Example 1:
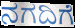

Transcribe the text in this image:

ನಗದಿಗೆ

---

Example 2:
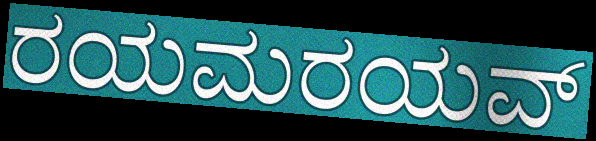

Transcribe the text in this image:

ರಯಮರಯವ್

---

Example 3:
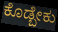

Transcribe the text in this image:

ಕೊಡ್ಬೇಕು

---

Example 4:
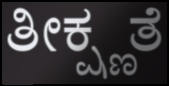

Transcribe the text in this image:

ತೀಕ್ಷ್ಣತೆ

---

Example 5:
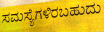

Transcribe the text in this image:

ಸಮಸ್ಯೆಗಳಿರಬಹುದು